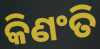
କିଣଂତି